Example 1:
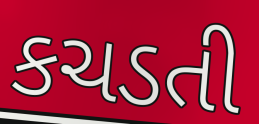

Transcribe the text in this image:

કચડતી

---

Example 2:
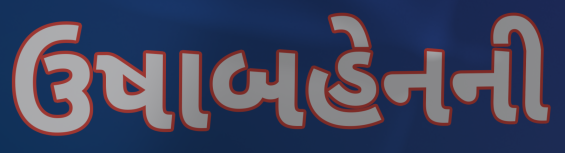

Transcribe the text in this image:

ઉષાબહેનની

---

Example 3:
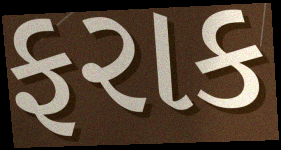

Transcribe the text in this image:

ફરાક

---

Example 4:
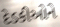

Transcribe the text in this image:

દેડકીઓને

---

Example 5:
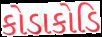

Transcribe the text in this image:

કોડાકોડિ